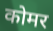
कोमर